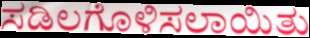
ಸಡಿಲಗೊಳಿಸಲಾಯಿತು